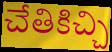
చేతికిచ్చి